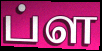
ப்ள